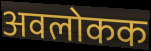
अवलोकक